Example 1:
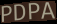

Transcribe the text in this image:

PDPA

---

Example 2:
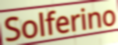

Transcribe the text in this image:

Solferino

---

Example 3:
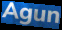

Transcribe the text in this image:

Agun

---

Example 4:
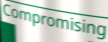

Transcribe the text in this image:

Compromising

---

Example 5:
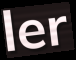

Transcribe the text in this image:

ler